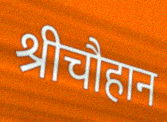
श्रीचौहान